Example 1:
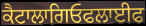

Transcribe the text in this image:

ਕੈਟਾਲਾਗਿਓਫਲਾਈਫ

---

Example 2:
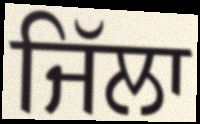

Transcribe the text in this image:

ਜਿੱਲਾ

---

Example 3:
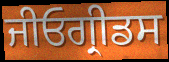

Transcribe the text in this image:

ਜੀਓਗ੍ਰੀਡਸ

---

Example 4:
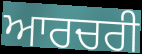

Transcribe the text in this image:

ਆਰਚਰੀ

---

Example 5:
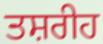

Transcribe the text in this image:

ਤਸ਼ਰੀਹ